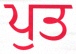
ਪੁਤ